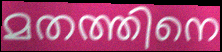
മതത്തിനെ